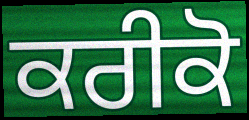
ਕਰੀਕੋ